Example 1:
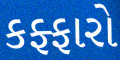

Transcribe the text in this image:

કફ્ફારો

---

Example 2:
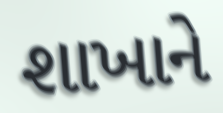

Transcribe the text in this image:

શાખાને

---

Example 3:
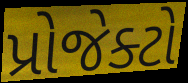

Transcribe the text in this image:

પ્રોજેક્ટો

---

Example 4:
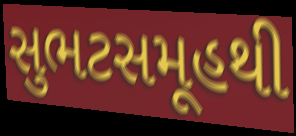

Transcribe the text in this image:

સુભટસમૂહથી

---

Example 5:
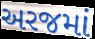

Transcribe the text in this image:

અરજમાં